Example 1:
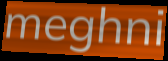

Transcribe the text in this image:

meghni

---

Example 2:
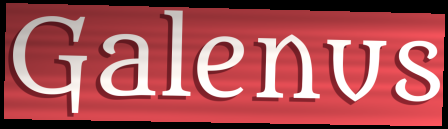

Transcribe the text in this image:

Galenus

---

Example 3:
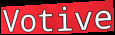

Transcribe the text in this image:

Votive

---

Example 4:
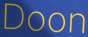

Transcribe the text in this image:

Doon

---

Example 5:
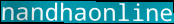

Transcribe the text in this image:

nandhaonline